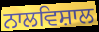
ਨਾਲਵਿਸ਼ਾਲ